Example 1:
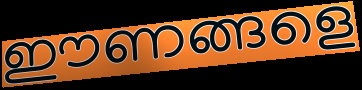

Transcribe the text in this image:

ഈണങ്ങളെ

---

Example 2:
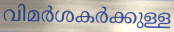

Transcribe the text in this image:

വിമർശകർക്കുള്ള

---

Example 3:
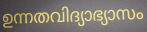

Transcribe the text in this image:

ഉന്നതവിദ്യാഭ്യാസം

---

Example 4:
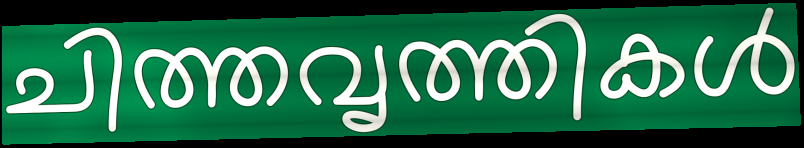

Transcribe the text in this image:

ചിത്തവൃത്തികൾ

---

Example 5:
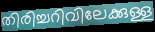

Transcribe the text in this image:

തിരിച്ചറിവിലേക്കുള്ള